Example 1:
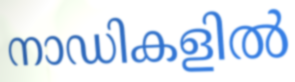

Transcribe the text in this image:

നാഡികളിൽ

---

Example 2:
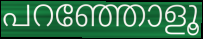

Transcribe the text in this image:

പറഞ്ഞോളൂ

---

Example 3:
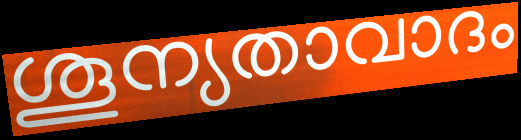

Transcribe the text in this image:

ശൂന്യതാവാദം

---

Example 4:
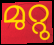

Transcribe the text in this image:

മുറ്റു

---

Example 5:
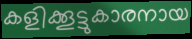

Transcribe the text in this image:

കളിക്കൂട്ടുകാരനായ